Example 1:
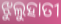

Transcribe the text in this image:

ଝୁଲୁହାତୀ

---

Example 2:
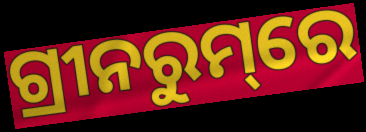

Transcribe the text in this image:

ଗ୍ରୀନରୁମ୍‌ରେ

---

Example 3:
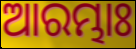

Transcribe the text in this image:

ଆରମ୍ଭାଃ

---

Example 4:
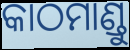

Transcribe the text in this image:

କାଠମାଣ୍ଡୁ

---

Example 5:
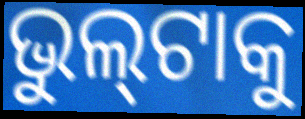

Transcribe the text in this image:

ଭୁଲ୍‍ଟାକୁ